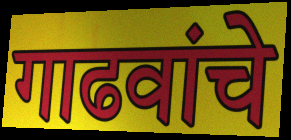
गाढवांचे